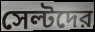
সেল্টদের